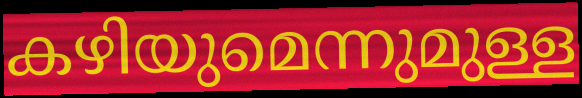
കഴിയുമെന്നുമുള്ള